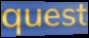
quest